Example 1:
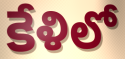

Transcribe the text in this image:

కేళిలో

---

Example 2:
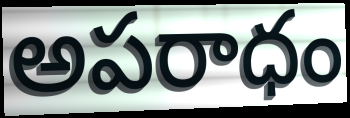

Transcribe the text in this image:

అపరాధం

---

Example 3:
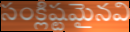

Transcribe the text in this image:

సంక్లిష్టమైనవి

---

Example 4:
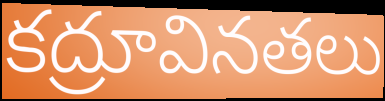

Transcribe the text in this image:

కద్రూవినతలు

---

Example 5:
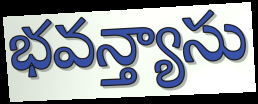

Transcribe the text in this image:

భవన్త్యాసు